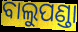
ବାଲୁପଣ୍ଡା